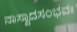
ನಾಸ್ವಾದಸಂಭವಃ